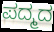
ಪದ್ಮದ